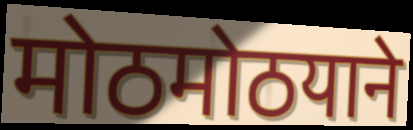
मोठमोठयाने